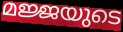
മജ്ജയുടെ